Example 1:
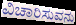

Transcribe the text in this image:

ವಿಚಾರಿಸುವನು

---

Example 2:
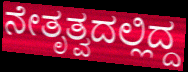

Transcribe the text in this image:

ನೇತೃತ್ವದಲ್ಲಿದ್ದ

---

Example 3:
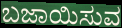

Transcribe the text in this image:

ಬಜಾಯಿಸುವ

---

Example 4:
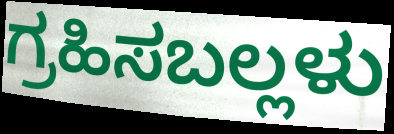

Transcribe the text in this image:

ಗ್ರಹಿಸಬಲ್ಲಳು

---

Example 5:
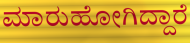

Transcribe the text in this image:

ಮಾರುಹೋಗಿದ್ದಾರೆ